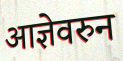
आज्ञेवरुन